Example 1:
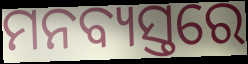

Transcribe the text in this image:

ମନବ୍ୟସ୍ତରେ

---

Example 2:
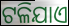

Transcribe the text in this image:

ଟଳିଯାଏ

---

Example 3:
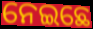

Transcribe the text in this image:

ନେଇଛେ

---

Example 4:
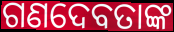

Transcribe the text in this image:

ଗଣଦେବତାଙ୍କ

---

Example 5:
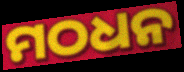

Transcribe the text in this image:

ମଠଧନ